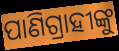
ପାଣିଗ୍ରାହୀଙ୍କୁ